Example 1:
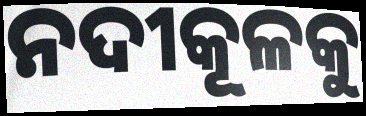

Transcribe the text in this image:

ନଦୀକୂଳକୁ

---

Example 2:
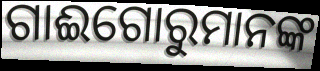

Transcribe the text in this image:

ଗାଈଗୋରୁମାନଙ୍କ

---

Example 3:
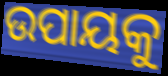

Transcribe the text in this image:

ଉପାୟକୁ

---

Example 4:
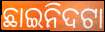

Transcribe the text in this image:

ଛାଇନିଦଟା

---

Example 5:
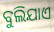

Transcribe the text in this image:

ବୁଲିଯାଏ